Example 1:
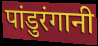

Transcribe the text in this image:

पांडुरंगानी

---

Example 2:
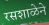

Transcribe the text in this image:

रसशाळेने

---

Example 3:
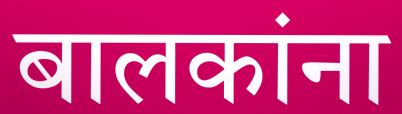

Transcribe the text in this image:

बालकांना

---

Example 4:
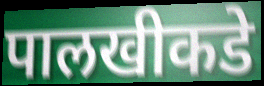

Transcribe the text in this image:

पालखीकडे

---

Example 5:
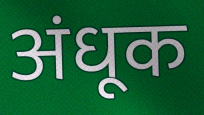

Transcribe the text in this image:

अंधूक